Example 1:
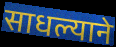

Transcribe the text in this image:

साधल्याने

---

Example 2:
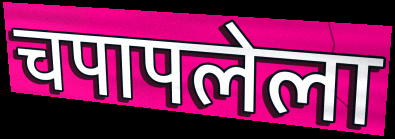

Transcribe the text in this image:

चपापलेला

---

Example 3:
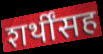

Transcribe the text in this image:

शर्थींसह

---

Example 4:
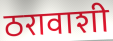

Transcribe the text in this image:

ठरावाशी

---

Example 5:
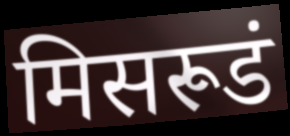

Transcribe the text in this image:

मिसरूडं